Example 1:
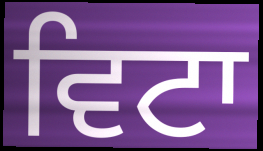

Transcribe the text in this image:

ਵਿਟਾ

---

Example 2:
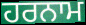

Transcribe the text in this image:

ਹਰਨਾਮ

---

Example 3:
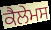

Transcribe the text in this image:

ਕੈਲੇਮਸ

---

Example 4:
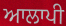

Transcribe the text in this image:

ਆਲਾਪੀ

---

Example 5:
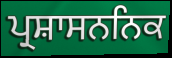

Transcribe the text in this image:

ਪ੍ਰਸ਼ਾਸਨਨਿਕ